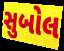
સુબોલ